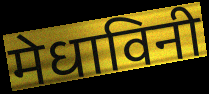
मेधाविनी